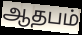
ஆதபம்